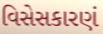
વિસેસકારણં